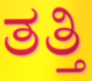
ತತ್ತಿ